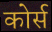
कोर्स